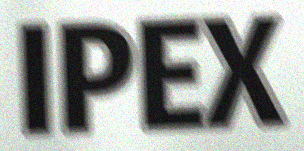
IPEX